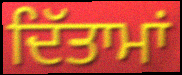
ਦਿੱਤਾਮਾਂ